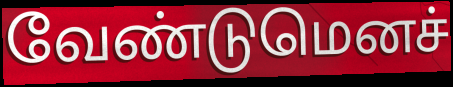
வேண்டுமெனச்